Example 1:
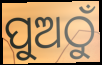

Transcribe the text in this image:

ପୁଅଠୁଁ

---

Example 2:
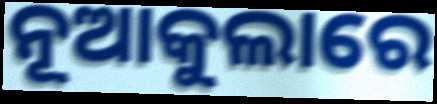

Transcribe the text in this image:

ନୂଆକୁଲାରେ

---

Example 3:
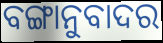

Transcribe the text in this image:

ବଙ୍ଗାନୁବାଦର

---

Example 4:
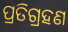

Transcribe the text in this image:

ପ୍ରତିଗ୍ରହଣ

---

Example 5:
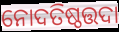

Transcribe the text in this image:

ନୋଦତିଷ୍ଠତ୍ତଦା